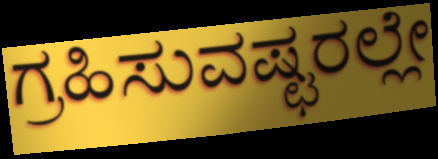
ಗ್ರಹಿಸುವಷ್ಟರಲ್ಲೇ